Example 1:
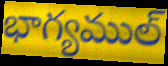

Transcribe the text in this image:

భాగ్యముల్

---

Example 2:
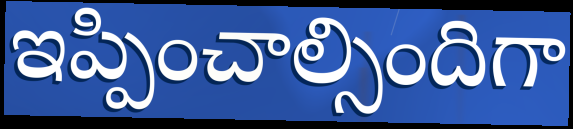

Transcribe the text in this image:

ఇప్పించాల్సిందిగా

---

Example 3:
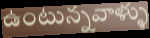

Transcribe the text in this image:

ఉంటున్నవాళ్ళు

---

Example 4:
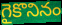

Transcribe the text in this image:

గైకొనినం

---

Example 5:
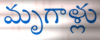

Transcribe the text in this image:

మృగాళ్లు